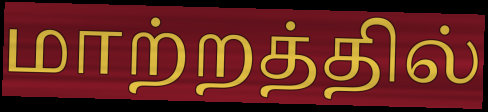
மாற்றத்தில்